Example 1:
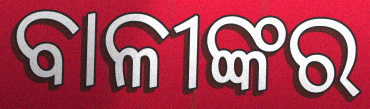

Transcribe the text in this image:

ବାଳୀଙ୍କର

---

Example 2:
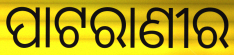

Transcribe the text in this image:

ପାଟରାଣୀର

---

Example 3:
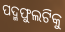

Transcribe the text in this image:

ପଦ୍ମଫୁଲଟିକୁ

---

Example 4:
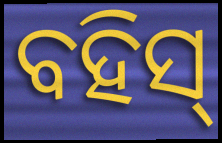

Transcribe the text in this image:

ବହିସ୍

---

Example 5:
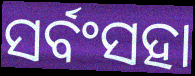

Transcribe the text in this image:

ସର୍ବଂସହା